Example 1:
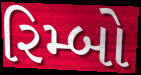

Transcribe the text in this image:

રિમ્બો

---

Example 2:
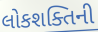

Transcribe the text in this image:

લોકશક્તિની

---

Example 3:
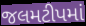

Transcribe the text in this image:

જલમટીપમાં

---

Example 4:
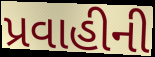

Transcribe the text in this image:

પ્રવાહીની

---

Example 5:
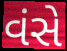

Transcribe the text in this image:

વંસે